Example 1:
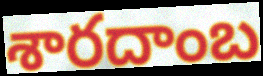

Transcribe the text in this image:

శారదాంబ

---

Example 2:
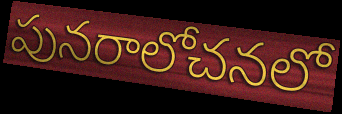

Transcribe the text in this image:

పునరాలోచనలో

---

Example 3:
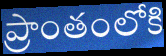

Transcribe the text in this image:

ప్రాంతంలోకి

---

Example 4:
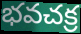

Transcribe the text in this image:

భవచక్ర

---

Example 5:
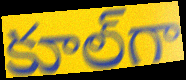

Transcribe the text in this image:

కూల్‌గా